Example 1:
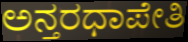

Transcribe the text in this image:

ಅನ್ತರಧಾಪೇತಿ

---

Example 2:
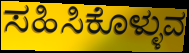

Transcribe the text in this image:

ಸಹಿಸಿಕೊಳ್ಳುವ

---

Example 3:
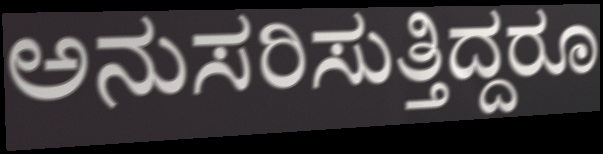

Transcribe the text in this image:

ಅನುಸರಿಸುತ್ತಿದ್ದರೂ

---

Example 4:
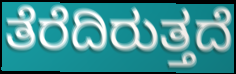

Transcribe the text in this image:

ತೆರೆದಿರುತ್ತದೆ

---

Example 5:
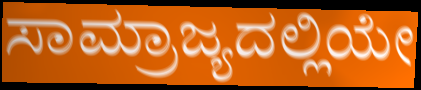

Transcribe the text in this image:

ಸಾಮ್ರಾಜ್ಯದಲ್ಲಿಯೇ